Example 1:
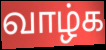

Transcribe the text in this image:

வாழ்க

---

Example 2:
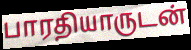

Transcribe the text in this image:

பாரதியாருடன்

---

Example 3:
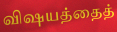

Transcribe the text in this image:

விஷயத்தைத்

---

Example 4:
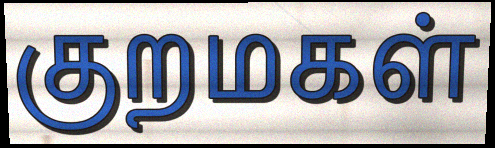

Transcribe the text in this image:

குறமகள்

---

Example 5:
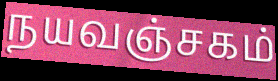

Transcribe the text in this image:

நயவஞ்சகம்